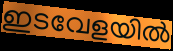
ഇടവേളയിൽ